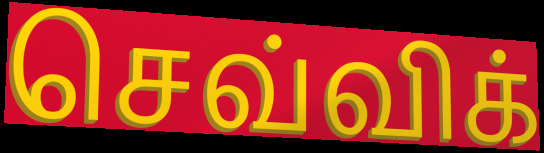
செவ்விக்